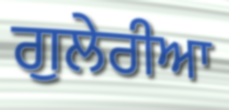
ਗੁਲੇਰੀਆ